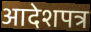
आदेशपत्र